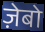
ज़ेबो